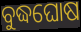
ବୁଦ୍ଧଘୋଷ